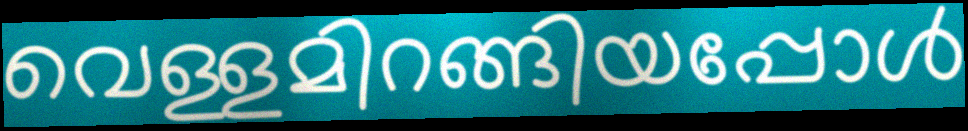
വെള്ളമിറങ്ങിയപ്പോൾ